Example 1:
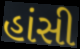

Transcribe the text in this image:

હાંસી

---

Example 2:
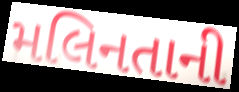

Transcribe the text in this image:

મલિનતાની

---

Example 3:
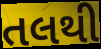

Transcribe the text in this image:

તલથી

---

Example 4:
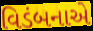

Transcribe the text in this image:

વિડંબનાએ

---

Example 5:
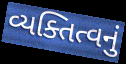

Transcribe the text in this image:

વ્યક્તિત્વનું